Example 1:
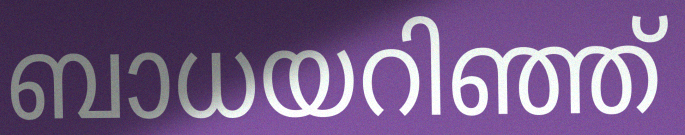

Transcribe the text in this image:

ബാധയറിഞ്ഞ്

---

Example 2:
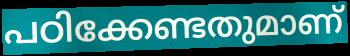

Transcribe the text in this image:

പഠിക്കേണ്ടതുമാണ്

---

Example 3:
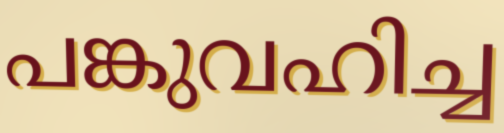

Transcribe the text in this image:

പങ്കുവഹിച്ച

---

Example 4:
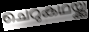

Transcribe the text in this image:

ചെറുകഥയ്ക്കു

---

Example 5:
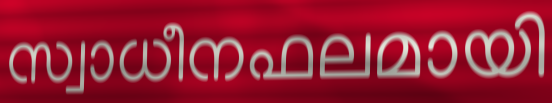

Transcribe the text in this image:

സ്വാധീനഫലമായി